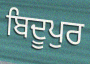
ਬਿਦੂਪੁਰ